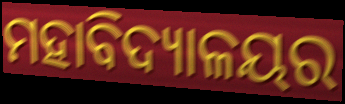
ମହାବିଦ୍ୟାଳୟର